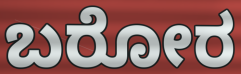
ಬರೋರ